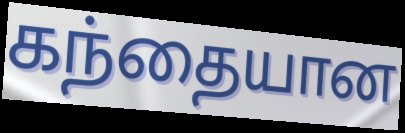
கந்தையான